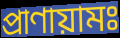
প্রাণায়ামঃ